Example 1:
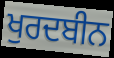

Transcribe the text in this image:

ਖੁਰਦਬੀਨ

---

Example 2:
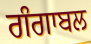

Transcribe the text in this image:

ਗੰਗਾਬਲ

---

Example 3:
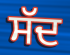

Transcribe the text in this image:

ਸੱਦ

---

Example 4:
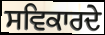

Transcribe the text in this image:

ਸਵਿਕਾਰਦੇ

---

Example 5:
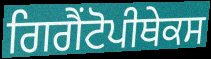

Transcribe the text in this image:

ਗਿਗੈਂਟੋਪੀਥੇਕਸ